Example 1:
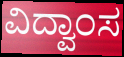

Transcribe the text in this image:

ವಿದ್ವಾಂಸ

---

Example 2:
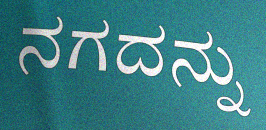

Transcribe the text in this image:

ನಗದನ್ನು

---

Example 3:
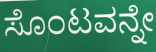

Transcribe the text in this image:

ಸೊಂಟವನ್ನೇ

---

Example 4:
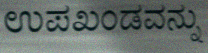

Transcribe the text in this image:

ಉಪಖಂಡವನ್ನು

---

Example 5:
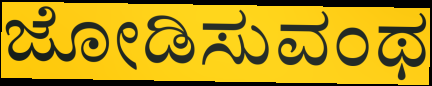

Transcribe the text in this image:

ಜೋಡಿಸುವಂಥ